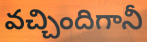
వచ్చిందిగానీ